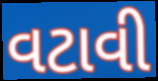
વટાવી